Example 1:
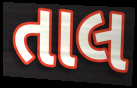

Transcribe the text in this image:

તાલ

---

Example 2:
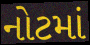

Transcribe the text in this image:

નોટમાં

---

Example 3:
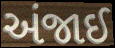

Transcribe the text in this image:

અંજાઈ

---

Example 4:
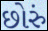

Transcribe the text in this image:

છોરું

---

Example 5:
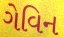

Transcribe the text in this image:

ગેવિન